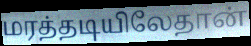
மரத்தடியிலேதான்